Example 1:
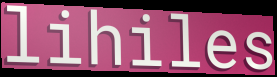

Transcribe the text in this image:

lihiles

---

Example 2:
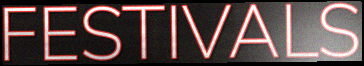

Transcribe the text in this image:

FESTIVALS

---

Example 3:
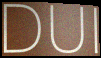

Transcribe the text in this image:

DUI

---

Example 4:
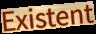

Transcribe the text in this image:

Existent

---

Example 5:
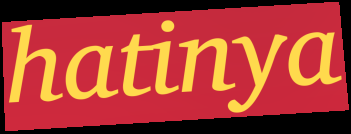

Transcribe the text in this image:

hatinya